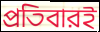
প্রতিবারই